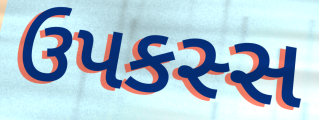
ઉપકસ્સ